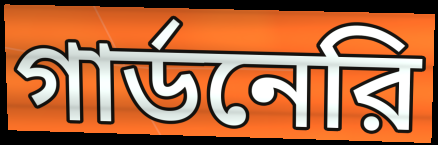
গার্ডনেরি